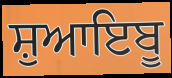
ਸ਼ੁਆਇਬੂ